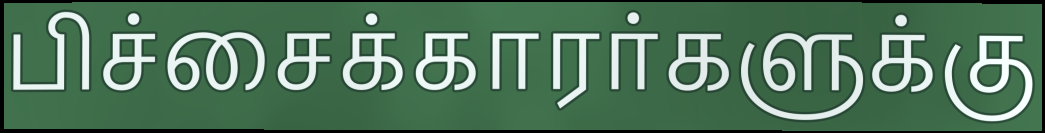
பிச்சைக்காரர்களுக்கு